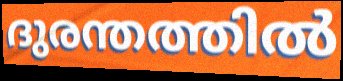
ദുരന്തത്തിൽ